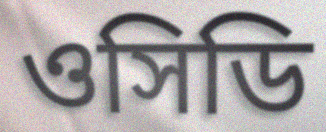
ওসিডি